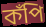
কঁপি